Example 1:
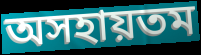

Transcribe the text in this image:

অসহায়তম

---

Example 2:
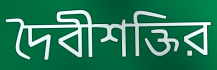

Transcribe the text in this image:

দৈবীশক্তির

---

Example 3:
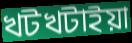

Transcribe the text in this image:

খটখটাইয়া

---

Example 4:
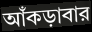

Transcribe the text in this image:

আঁকড়াবার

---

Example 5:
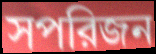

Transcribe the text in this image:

সপরিজন